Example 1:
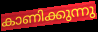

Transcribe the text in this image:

കാണിക്കുന്നു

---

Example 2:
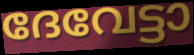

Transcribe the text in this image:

ദേവേട്ടാ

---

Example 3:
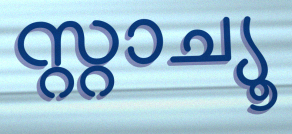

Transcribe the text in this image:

സ്റ്റാച്യൂ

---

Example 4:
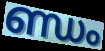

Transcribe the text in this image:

ണ്ഡം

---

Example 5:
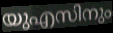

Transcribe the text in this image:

യുഎസിനും